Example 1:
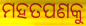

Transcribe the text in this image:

ମହତପଣକୁ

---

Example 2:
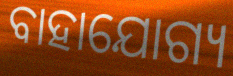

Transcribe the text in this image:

ବାହାଯୋଗ୍ୟ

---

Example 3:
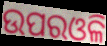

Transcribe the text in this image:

ଉପରଓଳି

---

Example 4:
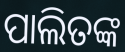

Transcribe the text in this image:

ପାଲିତଙ୍କ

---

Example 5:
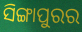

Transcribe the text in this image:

ସିଙ୍ଗାପୁରର